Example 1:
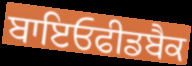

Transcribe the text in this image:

ਬਾਇਓਫੀਡਬੈਕ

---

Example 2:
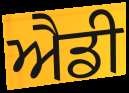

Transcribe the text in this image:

ਐਡੀ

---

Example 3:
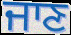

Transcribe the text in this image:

ਜਾਣ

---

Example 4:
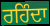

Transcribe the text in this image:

ਰਹਿੰਦਾ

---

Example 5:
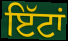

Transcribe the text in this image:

ਇੱਟਾਂ